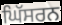
ਘਿੱਸਰਨ